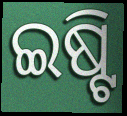
ଇଷ୍ଟି